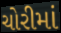
ચોરીમાં